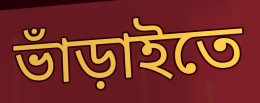
ভাঁড়াইতে